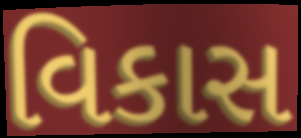
વિકાસ